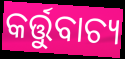
କର୍ତ୍ତୁବାଚ୍ୟ